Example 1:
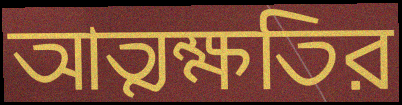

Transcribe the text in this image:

আত্মক্ষতির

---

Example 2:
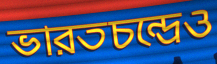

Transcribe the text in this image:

ভারতচন্দ্রেও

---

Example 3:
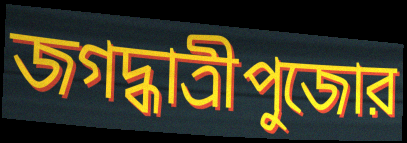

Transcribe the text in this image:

জগদ্ধাত্রীপুজোর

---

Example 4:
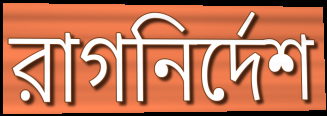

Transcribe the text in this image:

রাগনির্দেশ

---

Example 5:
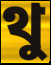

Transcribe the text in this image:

থু